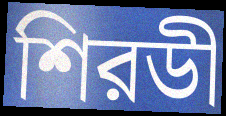
শিরডী